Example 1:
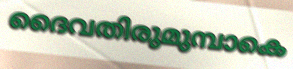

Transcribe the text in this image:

ദൈവതിരുമുമ്പാകെ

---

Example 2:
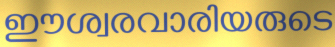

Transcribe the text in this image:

ഈശ്വരവാരിയരുടെ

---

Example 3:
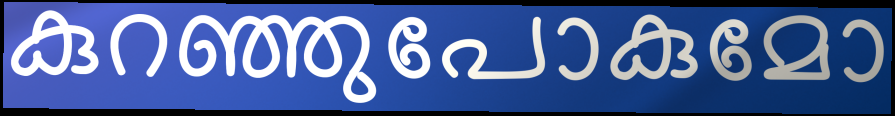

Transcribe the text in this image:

കുറഞ്ഞുപോകുമോ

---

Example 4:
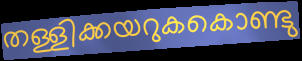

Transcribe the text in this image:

തള്ളിക്കയറുകകൊണ്ടു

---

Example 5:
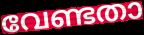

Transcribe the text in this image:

വേണ്ടതാ